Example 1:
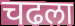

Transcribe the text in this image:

चढला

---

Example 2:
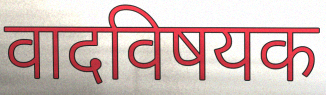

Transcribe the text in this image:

वादविषयक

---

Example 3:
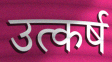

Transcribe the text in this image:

उत्कर्ष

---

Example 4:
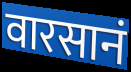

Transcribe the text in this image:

वारसानं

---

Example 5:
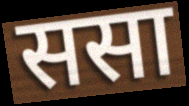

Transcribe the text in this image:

ससा